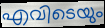
എവിടെയും